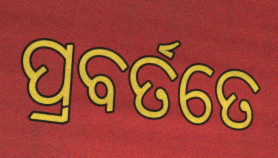
ପ୍ରବର୍ତତେ